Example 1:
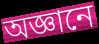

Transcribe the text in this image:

অজ্ঞানে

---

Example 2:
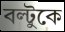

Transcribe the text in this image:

বল্টুকে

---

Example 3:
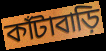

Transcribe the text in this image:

কাঁটাবাড়ি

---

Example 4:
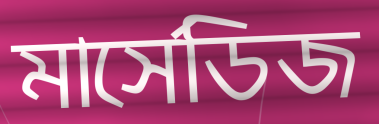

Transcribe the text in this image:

মার্সেডিজ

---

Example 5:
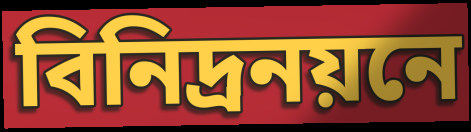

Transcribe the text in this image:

বিনিদ্রনয়নে